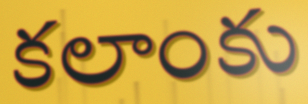
కలాంకు